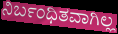
ನಿರ್ಬಂಧಿತವಾಗಿಲ್ಲ